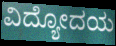
ವಿದ್ಯೋದಯ